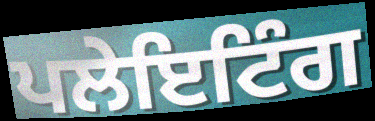
ਪਲੇਇਟਿੰਗ